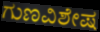
ಗುಣವಿಶೇಷ